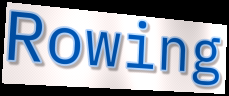
Rowing